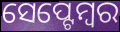
ସେପ୍ଟେମ୍ୱର